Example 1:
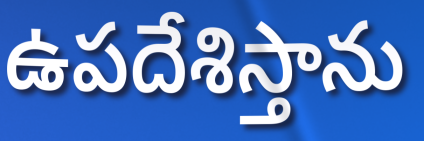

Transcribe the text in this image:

ఉపదేశిస్తాను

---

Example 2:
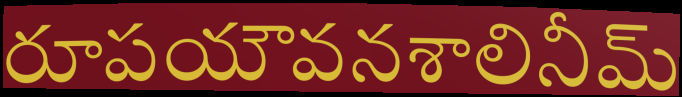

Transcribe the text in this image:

రూపయౌవనశాలినీమ్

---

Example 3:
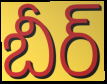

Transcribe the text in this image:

బీర్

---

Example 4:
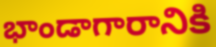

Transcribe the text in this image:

భాండాగారానికి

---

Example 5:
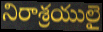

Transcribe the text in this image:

నిరాశ్రయులై